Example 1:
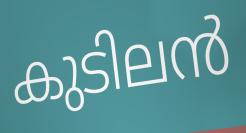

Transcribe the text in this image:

കുടിലൻ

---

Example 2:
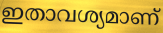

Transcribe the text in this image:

ഇതാവശ്യമാണ്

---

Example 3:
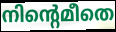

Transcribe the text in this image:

നിന്റെമീതെ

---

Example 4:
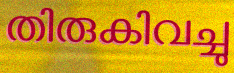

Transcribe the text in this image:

തിരുകിവച്ചു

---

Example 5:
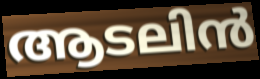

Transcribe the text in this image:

ആടലിൻ